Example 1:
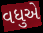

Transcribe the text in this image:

વધુએ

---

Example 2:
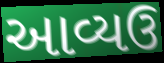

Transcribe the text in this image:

આવ્યઉ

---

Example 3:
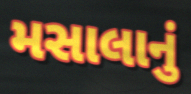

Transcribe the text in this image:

મસાલાનું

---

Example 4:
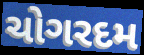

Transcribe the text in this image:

ચોગરદમ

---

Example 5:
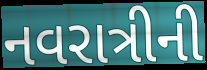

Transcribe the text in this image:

નવરાત્રીની